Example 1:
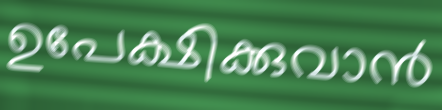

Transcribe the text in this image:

ഉപേക്ഷിക്കുവാൻ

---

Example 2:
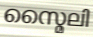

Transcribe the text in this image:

സ്മൈലി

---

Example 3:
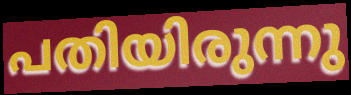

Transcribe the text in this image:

പതിയിരുന്നു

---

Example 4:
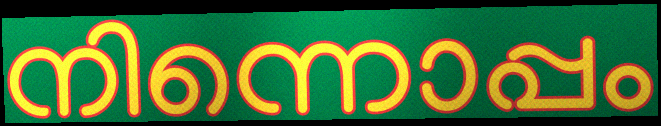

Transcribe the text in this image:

നിന്നൊപ്പം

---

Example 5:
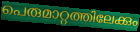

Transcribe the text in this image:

പെരുമാറ്റത്തിലേക്കും